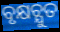
ବୃକ୍ଷଚ୍ଯୁତ